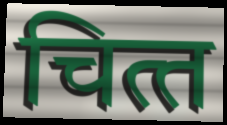
चित्‍त